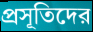
প্রসূতিদের